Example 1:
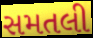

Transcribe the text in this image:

સમતલી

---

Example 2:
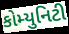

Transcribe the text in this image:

કોમ્યુનિટી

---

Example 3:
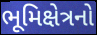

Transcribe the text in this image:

ભૂમિક્ષેત્રનો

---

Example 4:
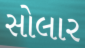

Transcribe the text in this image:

સોલાર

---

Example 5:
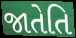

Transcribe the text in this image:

જાતેતિ